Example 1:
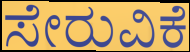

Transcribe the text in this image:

ಸೇರುವಿಕೆ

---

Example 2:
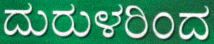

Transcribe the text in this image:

ದುರುಳರಿಂದ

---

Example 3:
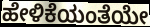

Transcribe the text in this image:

ಹೇಳಿಕೆಯಂತೆಯೇ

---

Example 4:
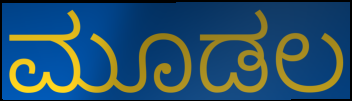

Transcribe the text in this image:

ಮೂಡಲ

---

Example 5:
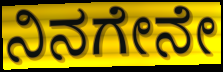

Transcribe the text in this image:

ನಿನಗೇನೇ